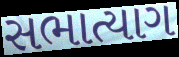
સભાત્યાગ